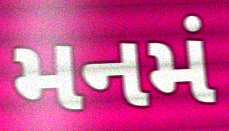
મનમં